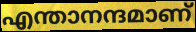
എന്താനന്ദമാണ്